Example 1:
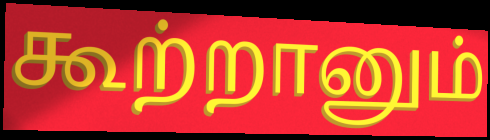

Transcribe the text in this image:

கூற்றானும்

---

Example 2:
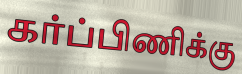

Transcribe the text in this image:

கர்ப்பிணிக்கு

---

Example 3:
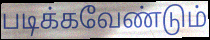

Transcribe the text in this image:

படிக்கவேண்டும்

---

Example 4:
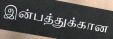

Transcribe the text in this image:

இன்பத்துக்கான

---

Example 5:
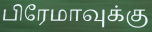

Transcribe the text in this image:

பிரேமாவுக்கு